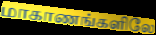
மாகாணங்களிலே